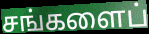
சங்களைப்